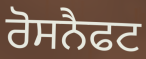
ਰੋਸਨੈਫਟ